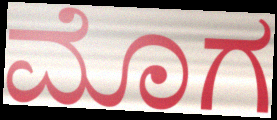
ಮೊಗ